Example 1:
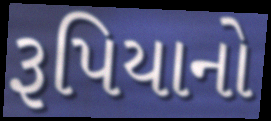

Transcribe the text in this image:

રૂપિયાનો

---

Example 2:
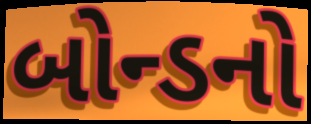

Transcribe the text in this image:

બોન્ડનો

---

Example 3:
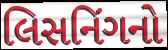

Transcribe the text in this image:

લિસનિંગનો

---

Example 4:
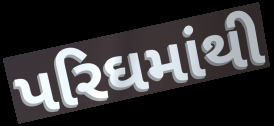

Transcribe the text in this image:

પરિઘમાંથી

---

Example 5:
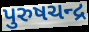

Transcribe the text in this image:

પુરુષચન્દ્ર